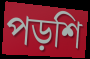
পড়শি